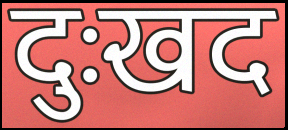
दुःखद